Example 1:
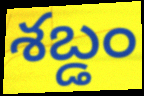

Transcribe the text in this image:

శబ్డం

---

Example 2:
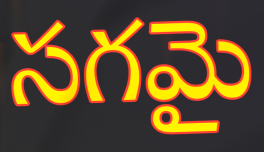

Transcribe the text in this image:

సగమై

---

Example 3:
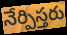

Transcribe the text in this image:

నేర్పిస్తరు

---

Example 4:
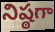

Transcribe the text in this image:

నిష్ఠగా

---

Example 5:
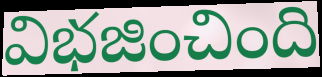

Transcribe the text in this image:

విభజించింది